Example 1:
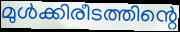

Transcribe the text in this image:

മുൾക്കിരീടത്തിന്റെ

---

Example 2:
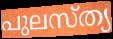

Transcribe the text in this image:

പുലസ്ത്യ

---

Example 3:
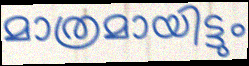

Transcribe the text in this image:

മാത്രമായിട്ടും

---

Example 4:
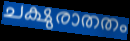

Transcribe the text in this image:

ചക്ഷുരാതതം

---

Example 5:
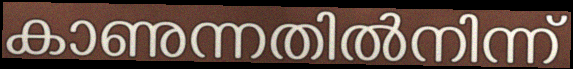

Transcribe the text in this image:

കാണുന്നതിൽനിന്ന്